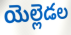
యెల్లెడల